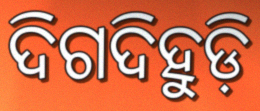
ଦିଗଦିହୁଡ଼ି